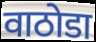
वाठोडा